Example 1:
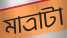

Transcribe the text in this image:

মাত্রাটা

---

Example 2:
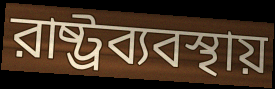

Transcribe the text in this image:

রাষ্ট্রব্যবস্থায়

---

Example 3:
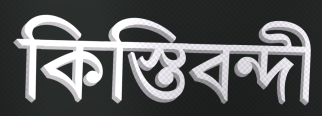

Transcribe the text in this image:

কিস্তিবন্দী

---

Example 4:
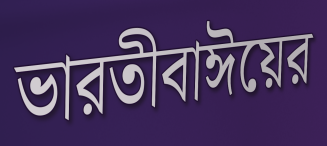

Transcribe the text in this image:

ভারতীবাঈয়ের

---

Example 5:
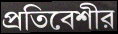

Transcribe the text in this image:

প্রতিবেশীর